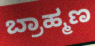
ಬ್ರಾಹ್ಮಣ